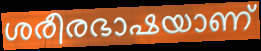
ശരീരഭാഷയാണ്